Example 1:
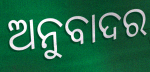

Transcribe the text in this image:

ଅନୁବାଦର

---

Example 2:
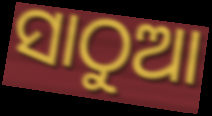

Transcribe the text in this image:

ସାଠୁଆ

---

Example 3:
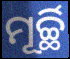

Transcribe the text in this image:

ମୂର୍ଚ୍ଛି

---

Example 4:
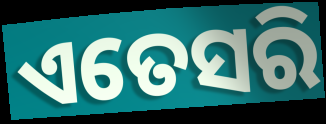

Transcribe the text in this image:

ଏତେସରି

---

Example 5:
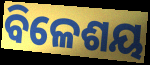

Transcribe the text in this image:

ବିଳେଶୟ